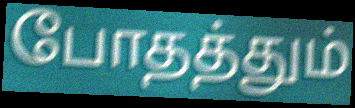
போதத்தும்